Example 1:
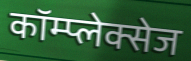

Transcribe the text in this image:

कॉम्प्लेक्सेज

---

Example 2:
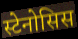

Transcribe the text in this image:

स्टेनोसिस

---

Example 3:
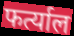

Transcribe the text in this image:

फर्त्याल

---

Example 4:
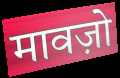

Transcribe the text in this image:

मावज़ो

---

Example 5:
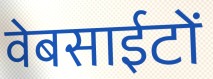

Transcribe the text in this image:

वेबसाईटों